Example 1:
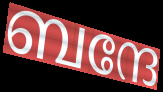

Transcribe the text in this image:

ബന്ദേ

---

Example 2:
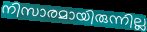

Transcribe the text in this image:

നിസാരമായിരുന്നില്ല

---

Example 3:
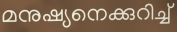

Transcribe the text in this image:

മനുഷ്യനെക്കുറിച്ച്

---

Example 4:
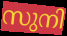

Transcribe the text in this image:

സുനി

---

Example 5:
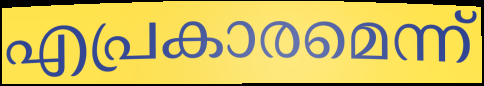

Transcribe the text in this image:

എപ്രകാരമെന്ന്